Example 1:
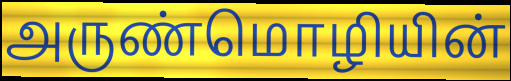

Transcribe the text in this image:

அருண்மொழியின்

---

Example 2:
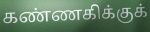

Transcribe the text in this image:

கண்ணகிக்குக்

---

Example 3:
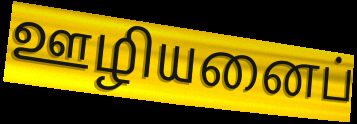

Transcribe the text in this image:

ஊழியனைப்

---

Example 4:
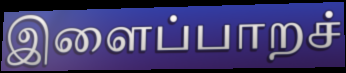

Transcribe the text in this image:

இளைப்பாறச்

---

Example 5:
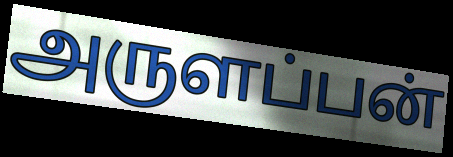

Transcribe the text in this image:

அருளப்பன்